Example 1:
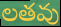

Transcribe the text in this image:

లతవు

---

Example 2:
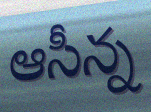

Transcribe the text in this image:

ఆసీన్న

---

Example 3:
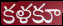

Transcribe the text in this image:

కళకూ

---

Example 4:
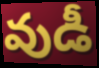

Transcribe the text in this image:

వుడీ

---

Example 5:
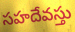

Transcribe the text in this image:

సహదేవస్తు